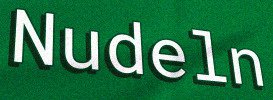
Nudeln